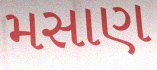
મસાણ